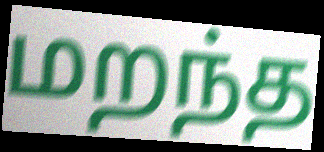
மறந்த